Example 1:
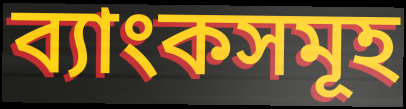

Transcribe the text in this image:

ব্যাংকসমূহ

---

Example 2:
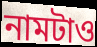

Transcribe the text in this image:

নামটাও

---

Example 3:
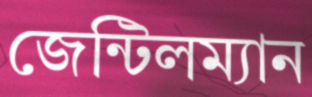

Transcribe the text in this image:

জেন্টিলম্যান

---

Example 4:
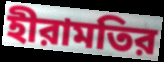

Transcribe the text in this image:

হীরামতির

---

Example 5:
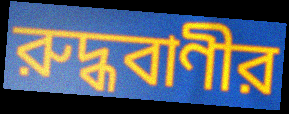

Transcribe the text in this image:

রুদ্ধবাণীর